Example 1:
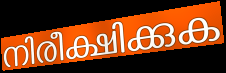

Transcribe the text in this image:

നിരീക്ഷിക്കുക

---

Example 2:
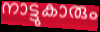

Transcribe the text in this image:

നാട്ടുകാരും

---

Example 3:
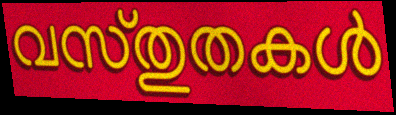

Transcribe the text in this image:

വസ്തുതകൾ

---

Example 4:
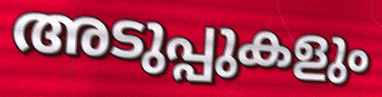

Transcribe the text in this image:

അടുപ്പുകളും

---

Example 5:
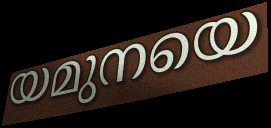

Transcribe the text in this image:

യമുനയെ